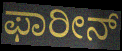
ಫಾರೀನ್